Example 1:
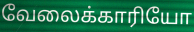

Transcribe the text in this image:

வேலைக்காரியோ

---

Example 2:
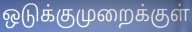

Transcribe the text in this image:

ஒடுக்குமுறைக்குள்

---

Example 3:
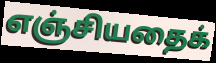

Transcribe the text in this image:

எஞ்சியதைக்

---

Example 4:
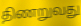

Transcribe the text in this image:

திணறுவது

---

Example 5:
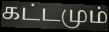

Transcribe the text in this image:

கட்டமும்